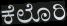
ಕೆಲೊರಿ